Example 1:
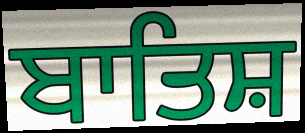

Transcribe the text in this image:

ਬਾਤਿਸ਼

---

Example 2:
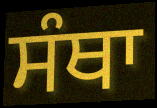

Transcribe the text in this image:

ਸੰਥਾ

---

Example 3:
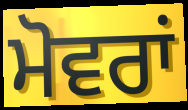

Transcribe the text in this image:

ਮੋਵਰਾਂ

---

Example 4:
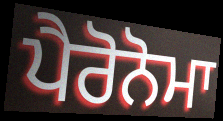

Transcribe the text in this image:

ਪੈਰੋਨੋਮਾ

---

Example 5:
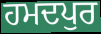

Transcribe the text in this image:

ਹਮਦਪੁਰ